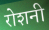
रोशनी